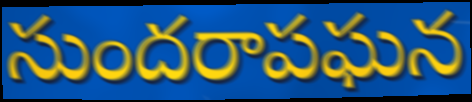
సుందరాపఘన